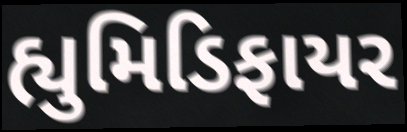
હ્યુમિડિફાયર